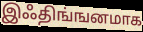
இஃதிங்ஙனமாக